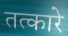
तत्कारे